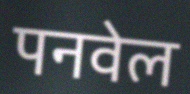
पनवेल